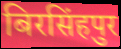
बिरसिंहपुर